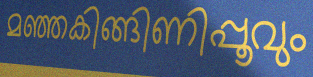
മഞ്ഞകിങ്ങിണിപ്പൂവും